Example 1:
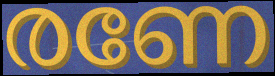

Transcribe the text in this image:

രണേ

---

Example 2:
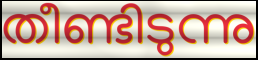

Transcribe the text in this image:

തീണ്ടിടുന്നു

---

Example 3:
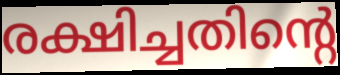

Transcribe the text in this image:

രക്ഷിച്ചതിന്റെ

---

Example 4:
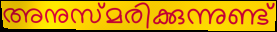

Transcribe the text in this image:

അനുസ്മരിക്കുന്നുണ്ട്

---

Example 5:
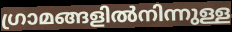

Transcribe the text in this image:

ഗ്രാമങ്ങളിൽനിന്നുള്ള